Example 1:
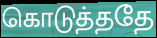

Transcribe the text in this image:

கொடுத்ததே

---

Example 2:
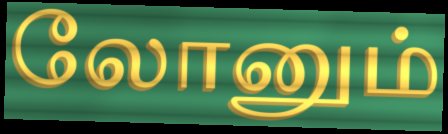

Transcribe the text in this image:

லோனும்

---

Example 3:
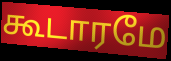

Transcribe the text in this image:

கூடாரமே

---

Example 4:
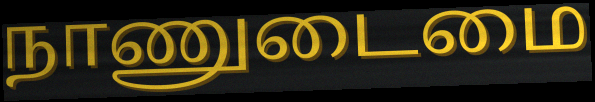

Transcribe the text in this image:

நாணுடைமை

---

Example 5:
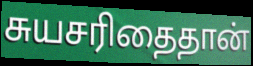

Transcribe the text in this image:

சுயசரிதைதான்